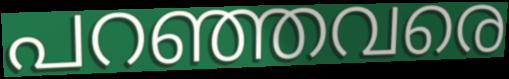
പറഞ്ഞവരെ